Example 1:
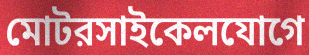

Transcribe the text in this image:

মোটরসাইকেলযোগে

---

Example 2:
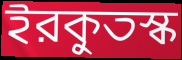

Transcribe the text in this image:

ইরকুতস্ক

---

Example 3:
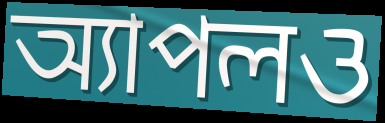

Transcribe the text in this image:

অ্যাপলও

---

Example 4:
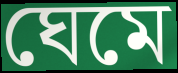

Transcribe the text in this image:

ঘেমে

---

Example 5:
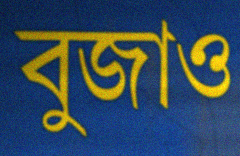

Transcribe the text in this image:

বুজাও